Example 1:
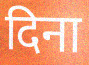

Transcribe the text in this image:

दिना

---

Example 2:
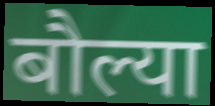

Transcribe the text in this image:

बौल्या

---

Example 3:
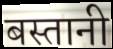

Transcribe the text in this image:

बस्तानी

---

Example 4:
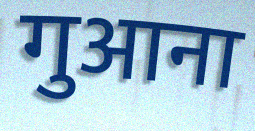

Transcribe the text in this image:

गुआना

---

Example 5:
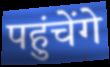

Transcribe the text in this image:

पहुंचेंगे